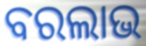
ବରଲାଭ